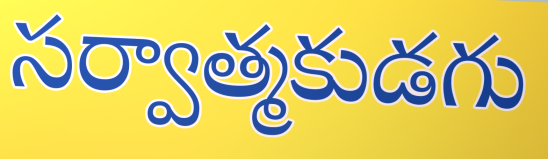
సర్వాత్మకుడగు